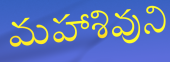
మహాశివుని